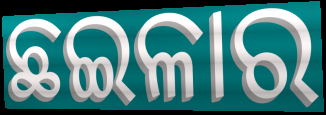
ଛଇଳାର